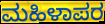
ಮಹಿಳಾಪರ